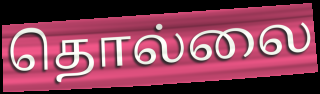
தொல்லை